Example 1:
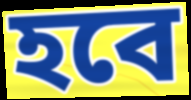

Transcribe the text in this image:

হবে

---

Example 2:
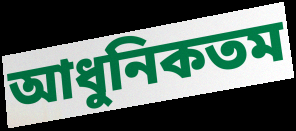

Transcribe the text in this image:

আধুনিকতম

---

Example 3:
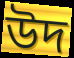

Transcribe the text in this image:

উদ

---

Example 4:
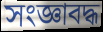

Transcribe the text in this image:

সংজ্ঞাবদ্ধ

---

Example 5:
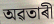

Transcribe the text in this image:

অৱতাৰী